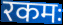
रकमः